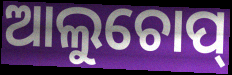
ଆଲୁଚୋପ୍